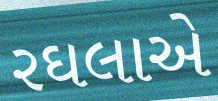
રઘલાએ